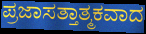
ಪ್ರಜಾಸತ್ತಾತ್ಮಕವಾದ